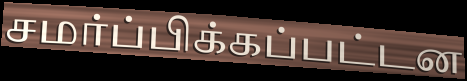
சமர்ப்பிக்கப்பட்டன